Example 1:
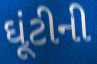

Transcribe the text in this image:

ઘૂંટીની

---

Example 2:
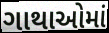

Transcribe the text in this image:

ગાથાઓમાં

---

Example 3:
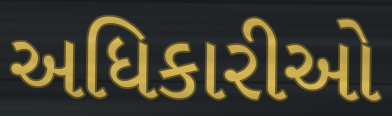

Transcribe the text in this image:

અધિકારીઓ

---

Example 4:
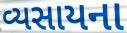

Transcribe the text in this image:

વ્યસાયના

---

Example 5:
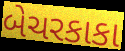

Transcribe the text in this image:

બેચરકાકા